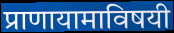
प्राणायामाविषयी